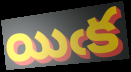
యిఁక